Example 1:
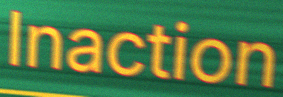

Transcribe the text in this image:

Inaction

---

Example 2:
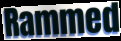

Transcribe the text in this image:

Rammed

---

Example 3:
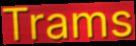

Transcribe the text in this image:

Trams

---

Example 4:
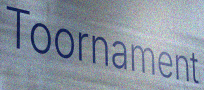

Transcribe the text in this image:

Toornament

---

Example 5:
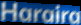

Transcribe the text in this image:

Haraira